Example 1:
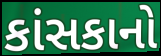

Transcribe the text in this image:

કાંસકાનો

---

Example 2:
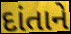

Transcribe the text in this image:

દાંતાને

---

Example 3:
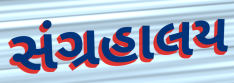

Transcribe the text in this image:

સંગ્રહાલય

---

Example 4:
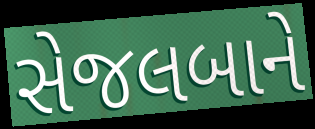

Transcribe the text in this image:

સેજલબાને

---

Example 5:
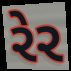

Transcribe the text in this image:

રેર